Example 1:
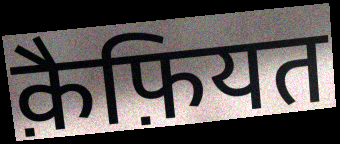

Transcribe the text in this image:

क़ैफ़ियत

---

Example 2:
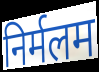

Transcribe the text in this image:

निर्मलम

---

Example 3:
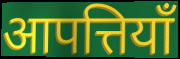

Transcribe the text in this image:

आपत्तियॉं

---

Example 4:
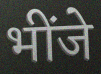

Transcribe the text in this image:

भींजे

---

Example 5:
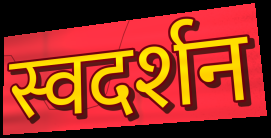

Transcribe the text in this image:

स्वदर्शन